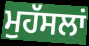
ਮੁਹੱਸਲਾਂ